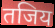
तजिय